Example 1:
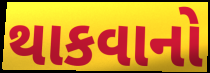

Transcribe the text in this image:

થાકવાનો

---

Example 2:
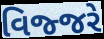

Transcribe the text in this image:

વિજ્જરે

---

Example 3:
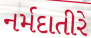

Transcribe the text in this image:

નર્મદાતીરે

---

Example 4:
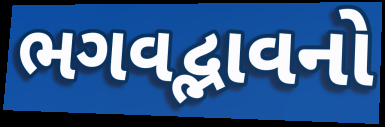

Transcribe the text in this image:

ભગવદ્ભાવનો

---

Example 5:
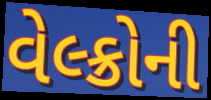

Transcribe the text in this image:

વેલ્ક્રોની